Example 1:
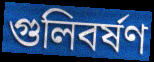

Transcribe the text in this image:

গুলিবৰ্ষণ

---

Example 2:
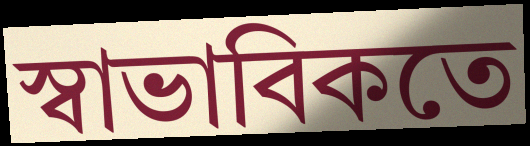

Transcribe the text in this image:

স্বাভাবিকতে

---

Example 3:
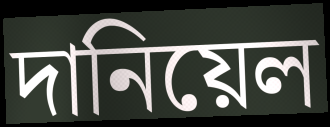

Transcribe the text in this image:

দানিয়েল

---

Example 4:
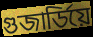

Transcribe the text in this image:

গুজাৰ্ডিয়ে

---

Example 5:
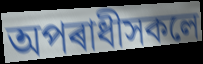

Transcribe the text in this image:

অপৰাধীসকলে